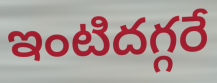
ఇంటిదగ్గరే